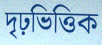
দৃঢ়ভিত্তিক